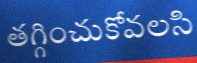
తగ్గించుకోవలసి